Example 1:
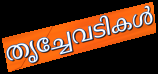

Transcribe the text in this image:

തൃച്ചേവടികൾ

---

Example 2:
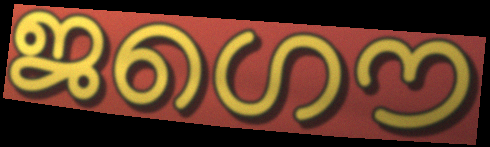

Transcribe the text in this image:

ജഗൌ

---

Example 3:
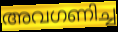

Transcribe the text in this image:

അവഗണിച്ച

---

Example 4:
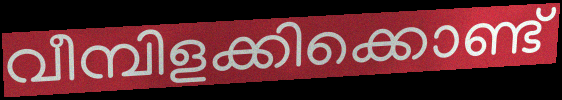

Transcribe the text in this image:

വീമ്പിളക്കിക്കൊണ്ട്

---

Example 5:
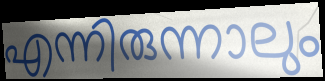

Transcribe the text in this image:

എന്നിരുന്നാലും